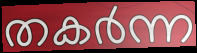
തകർന്ന